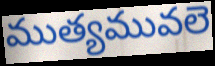
ముత్యమువలె